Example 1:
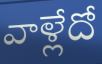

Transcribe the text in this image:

వాళ్లేదో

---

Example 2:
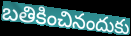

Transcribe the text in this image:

బతికించినందుకు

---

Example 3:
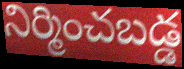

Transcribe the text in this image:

నిర్మించబడ్డ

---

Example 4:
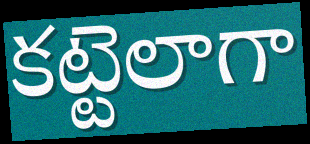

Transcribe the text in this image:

కట్టెలాగా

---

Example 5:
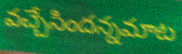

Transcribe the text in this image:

వచ్చేసిందన్నమాట